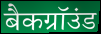
बैकग्रॉउंड